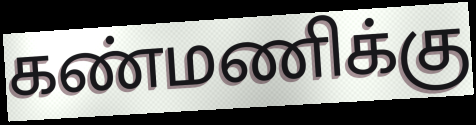
கண்மணிக்கு